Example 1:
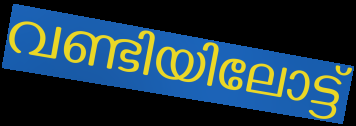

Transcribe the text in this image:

വണ്ടിയിലോട്ട്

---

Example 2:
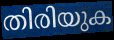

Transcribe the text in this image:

തിരിയുക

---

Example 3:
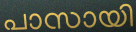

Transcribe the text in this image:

പാസായി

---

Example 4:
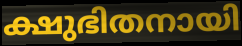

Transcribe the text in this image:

ക്ഷുഭിതനായി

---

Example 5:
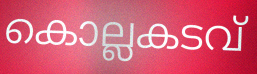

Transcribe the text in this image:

കൊല്ലകടവ്